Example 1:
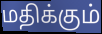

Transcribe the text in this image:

மதிக்கும்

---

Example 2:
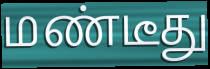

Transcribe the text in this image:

மண்டீது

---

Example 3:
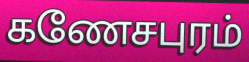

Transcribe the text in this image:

கணேசபுரம்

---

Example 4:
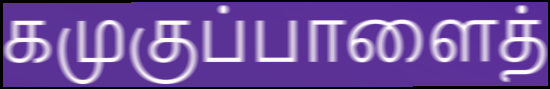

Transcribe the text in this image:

கமுகுப்பாளைத்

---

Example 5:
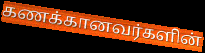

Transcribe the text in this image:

கணக்கானவர்களின்